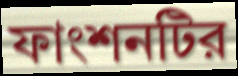
ফাংশনটির